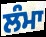
ਲੰਮਾ